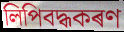
লিপিবদ্ধকৰণ